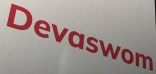
Devaswom